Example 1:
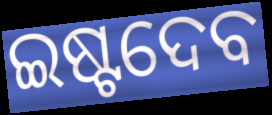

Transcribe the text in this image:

ଇଷ୍ଟଦେବ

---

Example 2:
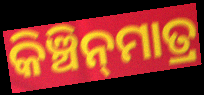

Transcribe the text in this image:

କିଞ୍ଚିନ୍‍ମାତ୍ର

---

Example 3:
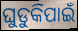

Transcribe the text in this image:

ଘୁଡୁକିପାଇଁ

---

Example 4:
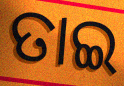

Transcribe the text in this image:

ତାଇ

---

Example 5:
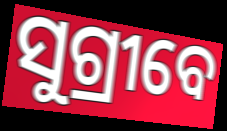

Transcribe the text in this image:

ସୁଗ୍ରୀବେ